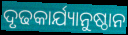
ଦୃଢକାର୍ଯ୍ୟାନୁଷ୍ଠାନ